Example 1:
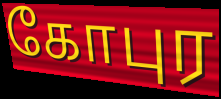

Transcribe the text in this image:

கோபுர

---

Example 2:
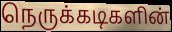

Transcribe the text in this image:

நெருக்கடிகளின்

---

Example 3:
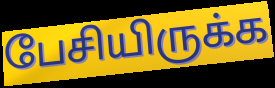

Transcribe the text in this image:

பேசியிருக்க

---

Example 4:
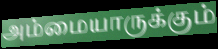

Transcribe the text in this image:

அம்மையாருக்கும்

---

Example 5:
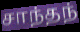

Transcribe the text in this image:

சாந்தந்